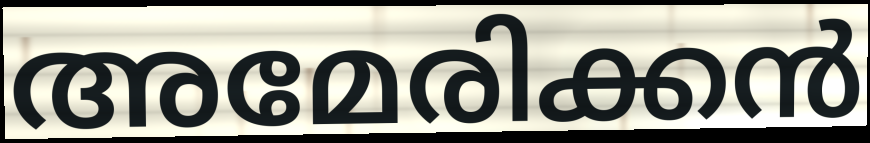
അമേരിക്കൻ